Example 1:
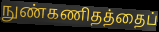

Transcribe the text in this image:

நுண்கணிதத்தைப்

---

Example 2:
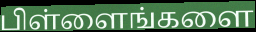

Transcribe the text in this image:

பிள்ளைங்களை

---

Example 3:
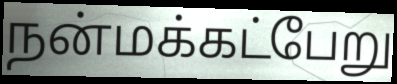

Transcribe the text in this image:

நன்மக்கட்பேறு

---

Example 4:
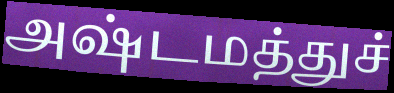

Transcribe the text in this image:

அஷ்டமத்துச்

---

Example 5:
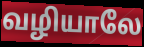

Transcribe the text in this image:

வழியாலே